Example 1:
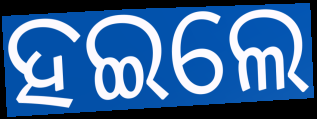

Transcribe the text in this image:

ହଇଲେ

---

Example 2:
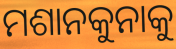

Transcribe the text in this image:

ମଶାନକୁନାକୁ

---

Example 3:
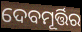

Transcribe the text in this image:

ଦେବମୂର୍ତ୍ତିର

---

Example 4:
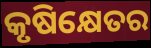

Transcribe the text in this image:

କୃଷିକ୍ଷେତର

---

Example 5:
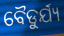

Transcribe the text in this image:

ବୈଡୁର୍ଯ୍ୟ